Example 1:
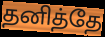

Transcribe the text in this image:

தனித்தே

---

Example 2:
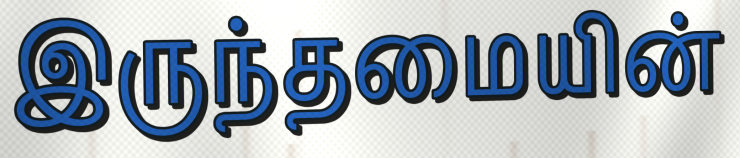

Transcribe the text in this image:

இருந்தமையின்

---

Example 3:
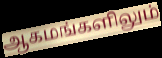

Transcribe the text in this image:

ஆகமங்களிலும்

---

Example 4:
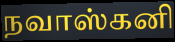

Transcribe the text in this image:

நவாஸ்கனி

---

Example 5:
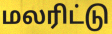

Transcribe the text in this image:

மலரிட்டு